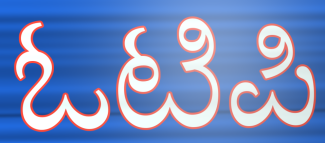
ಓಟಿಪಿ